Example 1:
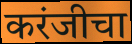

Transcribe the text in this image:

करंजीचा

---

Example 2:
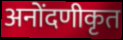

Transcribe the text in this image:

अनोंदणीकृत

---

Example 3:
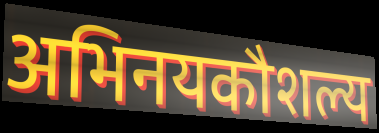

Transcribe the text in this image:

अभिनयकौशल्य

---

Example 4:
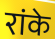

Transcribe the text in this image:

रांके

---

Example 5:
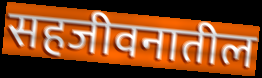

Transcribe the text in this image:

सहजीवनातील